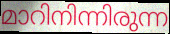
മാറിനിന്നിരുന്ന